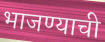
भाजण्याची